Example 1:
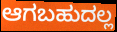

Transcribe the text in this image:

ಆಗಬಹುದಲ್ಲ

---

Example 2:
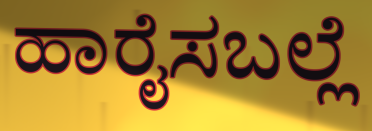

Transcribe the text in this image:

ಹಾರೈಸಬಲ್ಲೆ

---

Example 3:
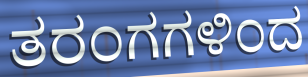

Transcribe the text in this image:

ತರಂಗಗಳಿಂದ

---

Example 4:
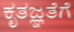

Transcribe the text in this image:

ಕೃತಜ್ಞತೆಗೆ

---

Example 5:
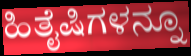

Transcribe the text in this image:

ಹಿತೈಷಿಗಳನ್ನೂ